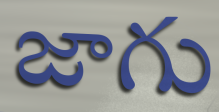
జాగు